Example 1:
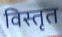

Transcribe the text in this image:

विस्तृत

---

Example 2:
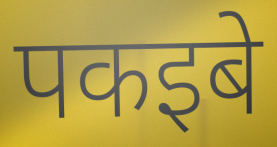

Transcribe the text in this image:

पकइबे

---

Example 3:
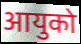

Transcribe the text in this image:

आयुको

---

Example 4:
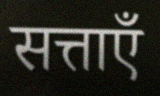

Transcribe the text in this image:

सत्ताएँ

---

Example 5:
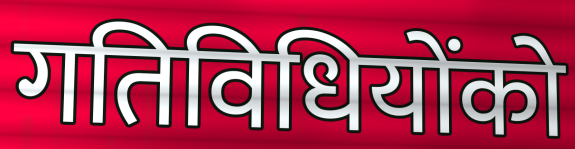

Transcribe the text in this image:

गतिविधियोंको